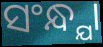
ସଂନ୍ଧ୍ଯା